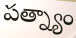
పత్న్యాం